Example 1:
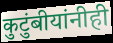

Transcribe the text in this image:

कुटुंबीयांनीही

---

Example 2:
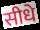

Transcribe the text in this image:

सीधे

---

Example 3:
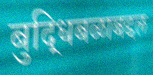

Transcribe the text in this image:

बुद्धिबळाबद्दल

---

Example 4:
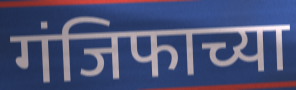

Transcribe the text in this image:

गंजिफाच्या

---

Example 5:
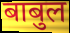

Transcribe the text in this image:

बाबुल